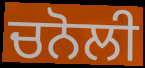
ਚਨੋਲੀ